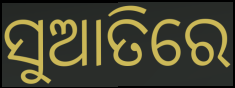
ସୁଆତିରେ